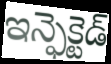
ఇన్ఫెక్టెడ్